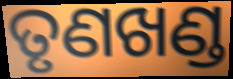
ତୃଣଖଣ୍ଡ